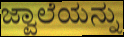
ಜ್ವಾಲೆಯನ್ನು